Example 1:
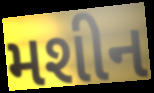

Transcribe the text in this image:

મશીન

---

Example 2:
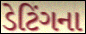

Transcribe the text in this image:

ડેટિંગના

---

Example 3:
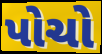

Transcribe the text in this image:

પોચો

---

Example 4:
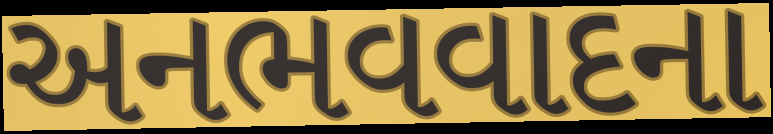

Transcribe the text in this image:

અનભવવાદના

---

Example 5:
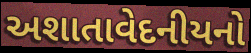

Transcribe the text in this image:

અશાતાવેદનીયનો